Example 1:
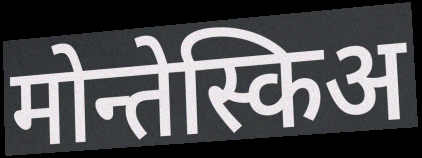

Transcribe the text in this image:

मोन्तेस्किअ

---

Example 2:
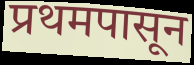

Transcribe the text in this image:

प्रथमपासून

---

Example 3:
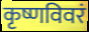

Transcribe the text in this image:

कृष्णविवरं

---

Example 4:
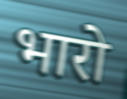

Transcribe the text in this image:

भारो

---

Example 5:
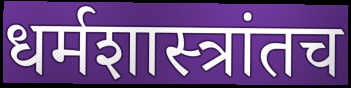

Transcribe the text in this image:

धर्मशास्त्रांतच